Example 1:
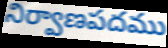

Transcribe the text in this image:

నిర్వాణపదము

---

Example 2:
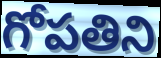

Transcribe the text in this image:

గోపతిని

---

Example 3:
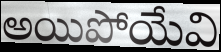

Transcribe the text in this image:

అయిపోయేవి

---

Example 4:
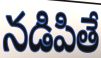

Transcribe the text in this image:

నడిపితే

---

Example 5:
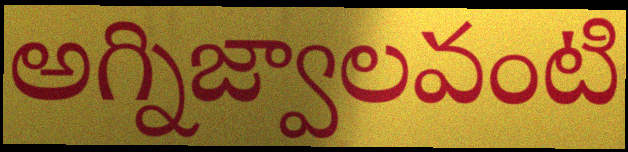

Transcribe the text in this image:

అగ్నిజ్వాలవంటి